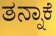
ತನ್ನಾಕೆ